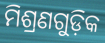
ମିଶ୍ରଣଗୁଡ଼ିକ